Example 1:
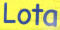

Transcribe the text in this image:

Lota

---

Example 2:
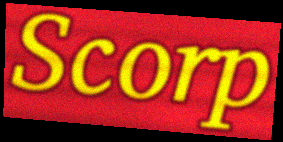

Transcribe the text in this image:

Scorp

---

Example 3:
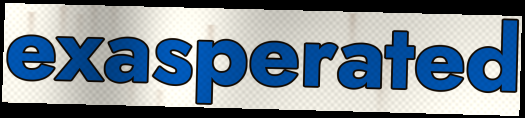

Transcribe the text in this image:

exasperated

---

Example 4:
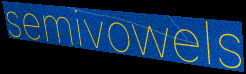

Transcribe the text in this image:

semivowels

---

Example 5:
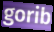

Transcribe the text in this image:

gorib